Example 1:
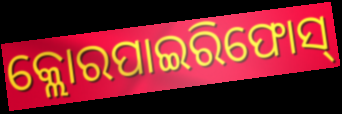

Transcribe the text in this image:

କ୍ଲୋରପାଇରିଫୋସ୍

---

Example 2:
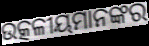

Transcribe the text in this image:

ଉତ୍କଳୀୟମାନଙ୍କର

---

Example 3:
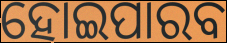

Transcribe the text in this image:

ହୋଇପାରବ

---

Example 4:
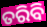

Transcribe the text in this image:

ତରିବି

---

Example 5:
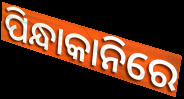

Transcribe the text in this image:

ପିନ୍ଧାକାନିରେ